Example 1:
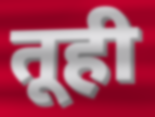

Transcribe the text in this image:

तूही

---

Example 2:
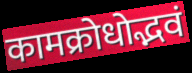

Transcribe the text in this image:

कामक्रोधोद्भवं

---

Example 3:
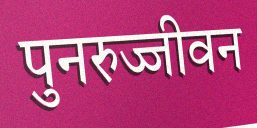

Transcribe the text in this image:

पुनरुज्जीवन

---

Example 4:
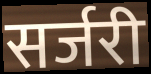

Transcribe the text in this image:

सर्जरी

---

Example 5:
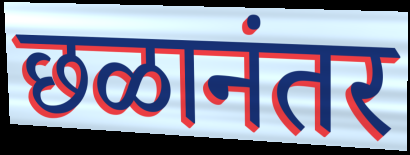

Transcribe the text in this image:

छळानंतर